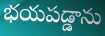
భయపడ్డాను